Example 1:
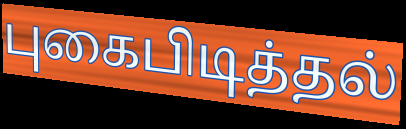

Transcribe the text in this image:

புகைபிடித்தல்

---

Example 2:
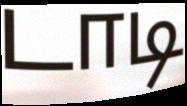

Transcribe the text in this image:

டாடி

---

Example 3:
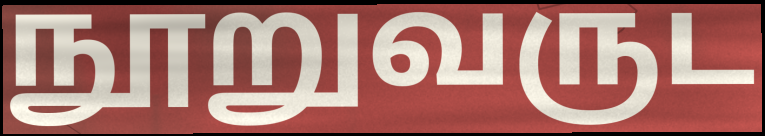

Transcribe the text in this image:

நூறுவருட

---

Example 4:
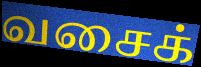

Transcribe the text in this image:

வசைக்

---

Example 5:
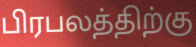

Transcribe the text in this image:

பிரபலத்திற்கு